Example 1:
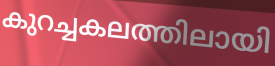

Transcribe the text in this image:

കുറച്ചകലത്തിലായി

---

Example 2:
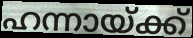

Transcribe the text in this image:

ഹന്നായ്ക്ക്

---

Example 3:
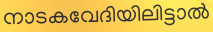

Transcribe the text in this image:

നാടകവേദിയിലിട്ടാൽ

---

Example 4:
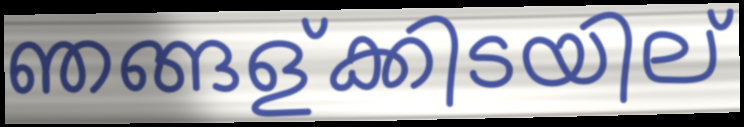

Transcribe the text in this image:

ഞങ്ങള്ക്കിടയില്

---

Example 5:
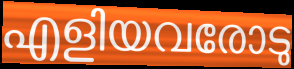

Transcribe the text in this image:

എളിയവരോടു